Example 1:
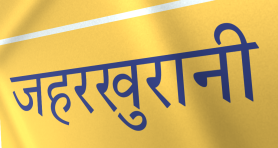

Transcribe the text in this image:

जहरखुरानी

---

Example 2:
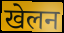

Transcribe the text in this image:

खेलन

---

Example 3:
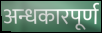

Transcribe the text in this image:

अन्धकारपूर्ण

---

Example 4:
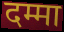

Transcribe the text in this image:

दम्मा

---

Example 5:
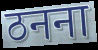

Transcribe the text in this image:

ठनना